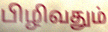
பிழிவதும்